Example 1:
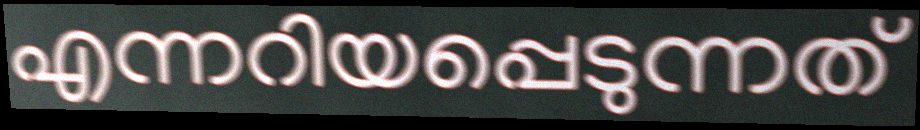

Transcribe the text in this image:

എന്നറിയപ്പെടുന്നത്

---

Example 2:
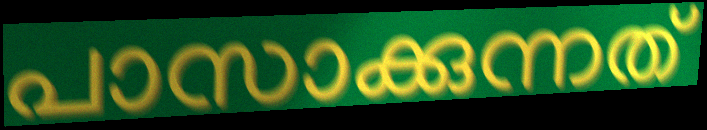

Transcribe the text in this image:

പാസാക്കുന്നത്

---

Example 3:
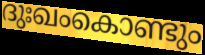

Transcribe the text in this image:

ദുഃഖംകൊണ്ടും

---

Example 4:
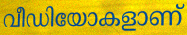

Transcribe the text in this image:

വീഡിയോകളാണ്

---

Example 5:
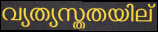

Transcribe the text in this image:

വ്യത്യസ്തതയില്